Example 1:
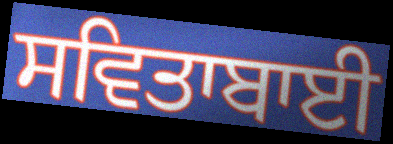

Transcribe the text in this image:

ਸਵਿਤਾਬਾਈ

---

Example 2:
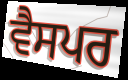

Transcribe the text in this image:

ਵੈਸਪਰ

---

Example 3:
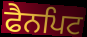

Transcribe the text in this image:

ਫੈਨਪਿਟ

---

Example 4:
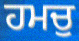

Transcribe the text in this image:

ਹਮਚੁ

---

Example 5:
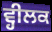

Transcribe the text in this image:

ਵ੍ਹੀਲਕ